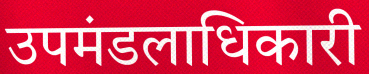
उपमंडलाधिकारी